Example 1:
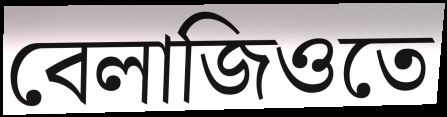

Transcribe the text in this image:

বেলাজিওতে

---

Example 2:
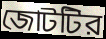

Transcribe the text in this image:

জোটটির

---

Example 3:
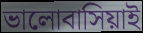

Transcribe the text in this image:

ভালোবাসিয়াই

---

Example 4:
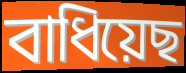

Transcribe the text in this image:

বাধিয়েছ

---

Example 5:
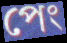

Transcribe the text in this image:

পেং